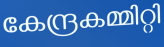
കേന്ദ്രകമ്മിറ്റി